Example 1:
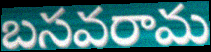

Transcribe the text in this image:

బసవరామ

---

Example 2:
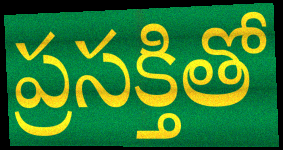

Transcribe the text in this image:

ప్రసక్తితో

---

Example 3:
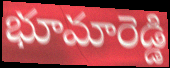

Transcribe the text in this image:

భూమారెడ్డి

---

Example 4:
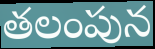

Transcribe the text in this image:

తలంపున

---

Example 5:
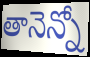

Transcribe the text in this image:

తానెన్నో